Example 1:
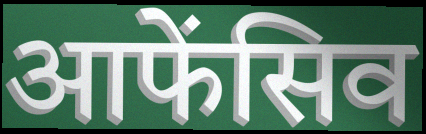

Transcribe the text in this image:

आफेंसिव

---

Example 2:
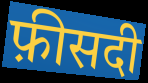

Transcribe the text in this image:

फ़ीसदी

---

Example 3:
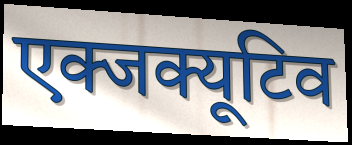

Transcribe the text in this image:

एक्जक्यूटिव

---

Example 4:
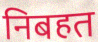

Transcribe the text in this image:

निबहत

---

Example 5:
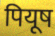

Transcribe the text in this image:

पियूष